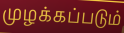
முழக்கப்படும்